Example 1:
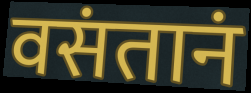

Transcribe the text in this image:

वसंतानं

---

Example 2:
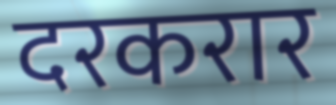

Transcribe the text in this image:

दरकरार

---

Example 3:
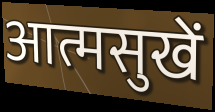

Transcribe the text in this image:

आत्मसुखें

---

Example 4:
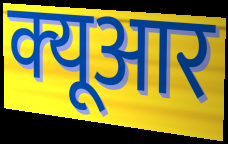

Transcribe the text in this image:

क्‍यूआर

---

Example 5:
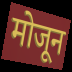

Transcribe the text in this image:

मोजून